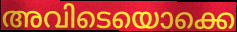
അവിടെയൊക്കെ